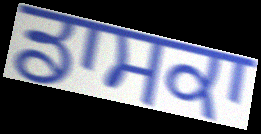
ਡਾਸਕਾ